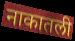
नाकातली